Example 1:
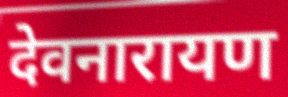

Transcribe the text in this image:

देवनारायण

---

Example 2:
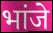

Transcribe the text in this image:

भांजे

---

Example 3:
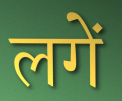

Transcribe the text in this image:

लगें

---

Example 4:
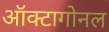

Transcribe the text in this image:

ऑक्टागोनल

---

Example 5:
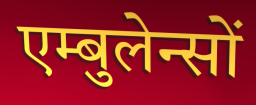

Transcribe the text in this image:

एम्बुलेन्सों